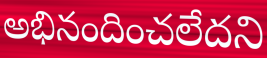
అభినందించలేదని